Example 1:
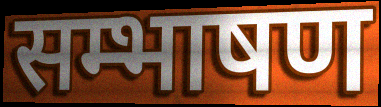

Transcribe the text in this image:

सम्भाषण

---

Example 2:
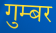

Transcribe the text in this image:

गुम्बर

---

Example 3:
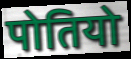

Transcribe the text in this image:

पोतियो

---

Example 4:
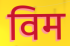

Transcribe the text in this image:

विम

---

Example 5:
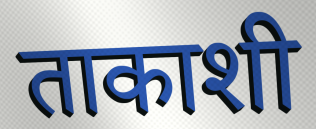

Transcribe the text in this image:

ताकाशी